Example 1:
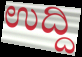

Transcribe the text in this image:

ಉದ್ದಿ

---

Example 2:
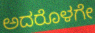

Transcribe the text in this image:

ಅದರೊಳಗೇ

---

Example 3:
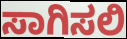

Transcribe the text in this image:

ಸಾಗಿಸಲಿ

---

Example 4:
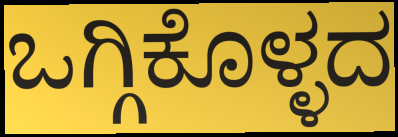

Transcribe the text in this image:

ಒಗ್ಗಿಕೊಳ್ಳದ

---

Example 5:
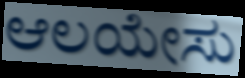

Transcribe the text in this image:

ಆಲಯೇಸು